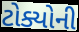
ટોક્યોની